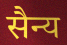
सैन्य